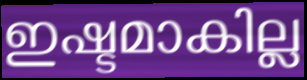
ഇഷ്ടമാകില്ല